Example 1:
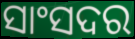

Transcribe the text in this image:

ସାଂସଦର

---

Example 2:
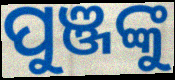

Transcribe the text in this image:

ପୁଞ୍ଜଙ୍କୁ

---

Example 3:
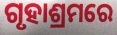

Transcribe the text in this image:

ଗୃହାଶ୍ରମରେ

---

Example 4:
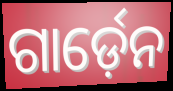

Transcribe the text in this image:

ଗାର୍ଡ଼େନ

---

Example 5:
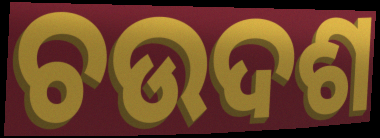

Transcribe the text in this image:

ଚଉଦଶ